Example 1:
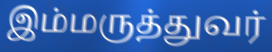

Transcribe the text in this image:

இம்மருத்துவர்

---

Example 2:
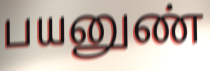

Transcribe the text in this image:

பயனுண்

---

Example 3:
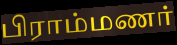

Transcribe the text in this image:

பிராம்மணர்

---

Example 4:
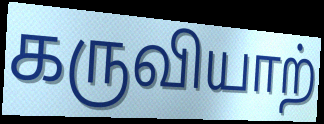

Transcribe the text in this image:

கருவியாற்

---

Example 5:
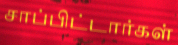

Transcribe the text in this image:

சாப்பிட்டார்கள்